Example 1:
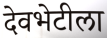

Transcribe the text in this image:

देवभेटीला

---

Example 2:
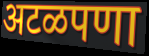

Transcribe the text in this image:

अटळपणा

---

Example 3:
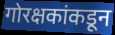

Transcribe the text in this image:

गोरक्षकांकडून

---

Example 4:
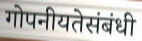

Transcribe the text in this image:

गोपनीयतेसंबंधी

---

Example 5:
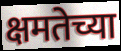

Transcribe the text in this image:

क्षमतेच्या